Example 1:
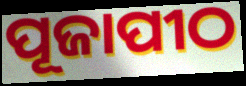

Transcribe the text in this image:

ପୂଜାପୀଠ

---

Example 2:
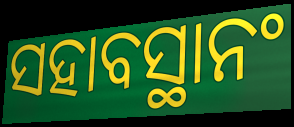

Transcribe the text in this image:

ସହାବସ୍ଥାନଂ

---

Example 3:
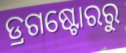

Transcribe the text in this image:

ଡ୍ରଗଷ୍ଟୋରରୁ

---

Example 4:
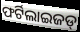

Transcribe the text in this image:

ଫର୍ଟିଲାଇଜଡ୍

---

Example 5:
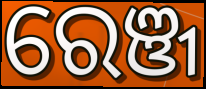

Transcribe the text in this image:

ରେଞ୍ଜ